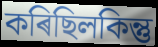
কৰিছিলকিন্তু